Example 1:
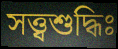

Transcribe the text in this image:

সত্ত্বশুদ্ধিঃ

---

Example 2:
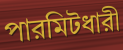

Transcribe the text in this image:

পারমিটধারী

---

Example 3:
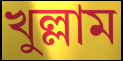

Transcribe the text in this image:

খুল্লাম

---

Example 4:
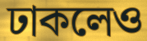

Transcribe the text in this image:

ঢাকলেও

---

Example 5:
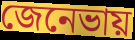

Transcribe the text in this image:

জেনেভায়